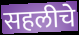
सहलीचे